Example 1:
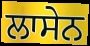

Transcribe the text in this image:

ਲਾਸੇਨ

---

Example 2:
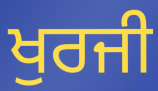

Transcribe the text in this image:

ਖੁਰਜੀ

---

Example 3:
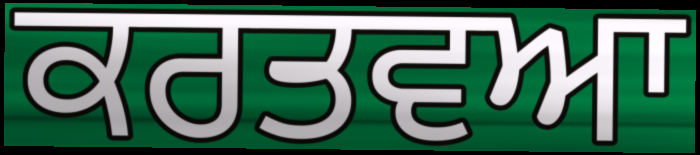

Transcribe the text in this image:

ਕਰਤਵਆ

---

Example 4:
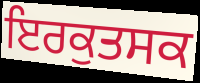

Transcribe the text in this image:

ਇਰਕੁਤਸਕ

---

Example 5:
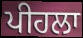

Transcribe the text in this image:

ਪੀਹਲਾ